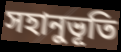
সহানুভূতি